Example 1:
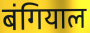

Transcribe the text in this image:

बंगियाल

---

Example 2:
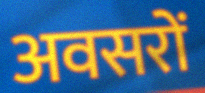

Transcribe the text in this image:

अवसरों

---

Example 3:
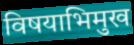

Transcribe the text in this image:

विषयाभिमुख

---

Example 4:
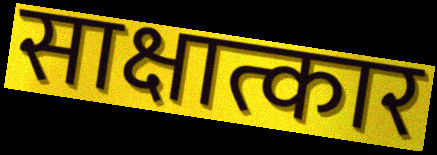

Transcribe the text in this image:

साक्षात्कार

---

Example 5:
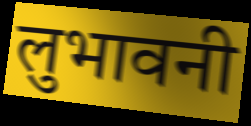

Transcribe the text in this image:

लुभावनी